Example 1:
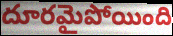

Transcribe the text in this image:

దూరమైపోయింది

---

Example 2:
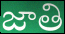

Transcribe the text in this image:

జాతి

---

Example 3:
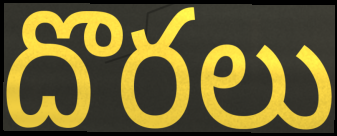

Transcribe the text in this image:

దొరలు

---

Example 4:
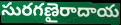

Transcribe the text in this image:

సురగణైరాదాయ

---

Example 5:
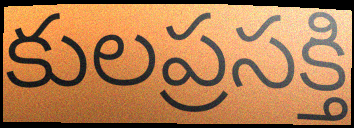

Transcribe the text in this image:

కులప్రసక్తి